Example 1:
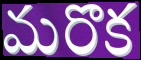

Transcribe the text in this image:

మరొక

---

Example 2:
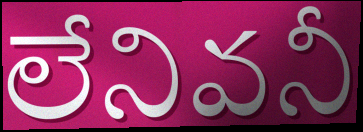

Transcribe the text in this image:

లేనివనీ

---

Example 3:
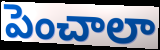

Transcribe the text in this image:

పెంచాలా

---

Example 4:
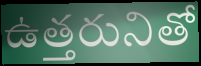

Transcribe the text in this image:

ఉత్తరునితో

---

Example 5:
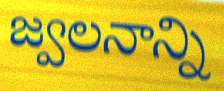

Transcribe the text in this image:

జ్వలనాన్ని